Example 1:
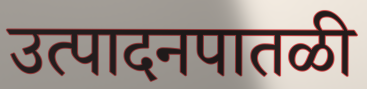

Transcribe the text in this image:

उत्पादनपातळी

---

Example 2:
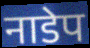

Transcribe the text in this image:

नाडेप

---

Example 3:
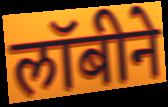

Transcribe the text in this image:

लॉबीने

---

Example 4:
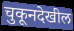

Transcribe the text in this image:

चुकूनदेखील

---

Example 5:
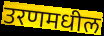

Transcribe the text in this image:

उरणमधील